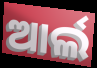
ଆର୍ଲ